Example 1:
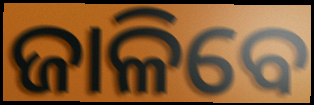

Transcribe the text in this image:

ଜାଳିବେ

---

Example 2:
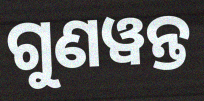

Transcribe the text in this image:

ଗୁଣୱନ୍ତ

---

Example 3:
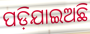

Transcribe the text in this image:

ପଡ଼ିଯାଇଅଛି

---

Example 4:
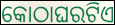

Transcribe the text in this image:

କୋଠାଘରଟିଏ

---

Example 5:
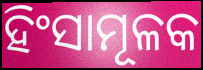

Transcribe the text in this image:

ହିଂସାମୂଳକ